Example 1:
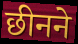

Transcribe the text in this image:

छीनने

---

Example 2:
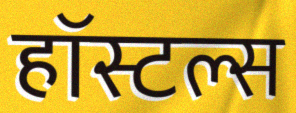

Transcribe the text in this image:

हॉस्टल्स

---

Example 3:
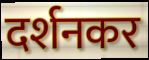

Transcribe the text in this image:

दर्शनकर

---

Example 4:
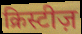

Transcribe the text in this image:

क्रिस्टीज़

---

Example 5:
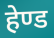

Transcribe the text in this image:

हेण्ड